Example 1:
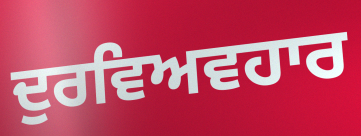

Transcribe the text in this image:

ਦੁਰਵਿਅਵਹਾਰ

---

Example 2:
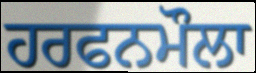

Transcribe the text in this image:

ਹਰਫਨਮੌਲਾ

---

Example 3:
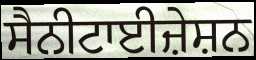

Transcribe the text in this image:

ਸੈਨੀਟਾਈਜ਼ੇਸ਼ਨ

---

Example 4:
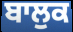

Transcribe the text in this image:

ਬਾਲੁਕ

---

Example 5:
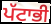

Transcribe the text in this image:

ਪੱਟਾਭੀ